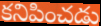
కనిపించడు